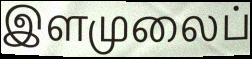
இளமுலைப்